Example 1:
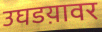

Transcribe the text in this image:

उघडय़ावर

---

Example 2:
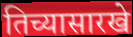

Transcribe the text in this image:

तिच्यासारखे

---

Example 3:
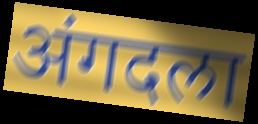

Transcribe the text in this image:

अंगदला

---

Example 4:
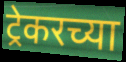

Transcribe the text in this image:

ट्रेकरच्या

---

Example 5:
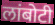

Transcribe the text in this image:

लांबोटी